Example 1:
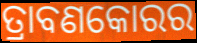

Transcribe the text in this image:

ତ୍ରାବଣକୋରର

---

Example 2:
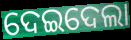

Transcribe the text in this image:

ଦେଇଦେଲା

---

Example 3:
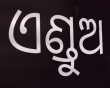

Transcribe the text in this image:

ଏଣ୍ଡୁଅ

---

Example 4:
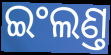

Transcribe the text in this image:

ଇଂଲଣ୍ତ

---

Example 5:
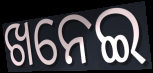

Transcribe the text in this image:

ଖନେଇ